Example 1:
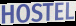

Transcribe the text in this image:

HOSTEL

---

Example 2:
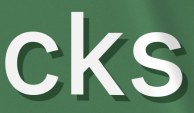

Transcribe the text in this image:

cks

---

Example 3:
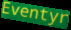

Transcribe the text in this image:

Eventyr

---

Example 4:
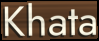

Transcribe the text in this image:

Khata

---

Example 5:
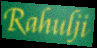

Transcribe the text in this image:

Rahulji